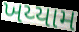
ખય્યામ